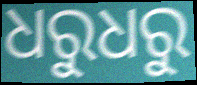
ଧରୁଧରୁ